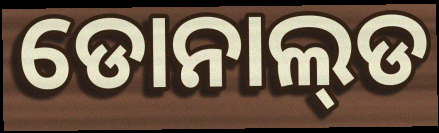
ଡୋନାଲ୍‌ଡ